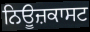
ਨਿਊਜ਼ਕਾਸਟ